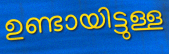
ഉണ്ടായിട്ടുള്ള